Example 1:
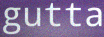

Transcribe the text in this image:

gutta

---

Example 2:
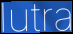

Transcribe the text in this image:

lutra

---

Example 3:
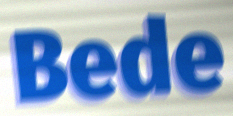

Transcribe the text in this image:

Bede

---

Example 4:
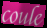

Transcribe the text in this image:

coule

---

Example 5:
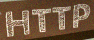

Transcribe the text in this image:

HTTP